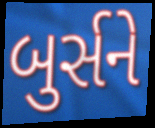
બુર્સને